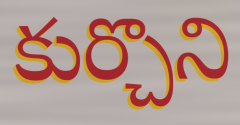
కుర్చొని